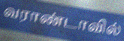
வராண்டாவில்